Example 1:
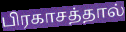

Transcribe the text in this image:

பிரகாசத்தால்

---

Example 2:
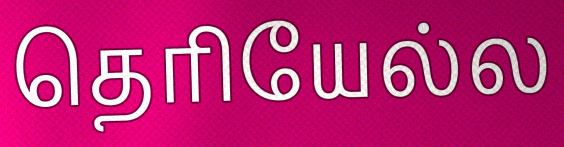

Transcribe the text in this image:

தெரியேல்ல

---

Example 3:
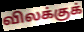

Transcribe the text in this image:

விலக்குக்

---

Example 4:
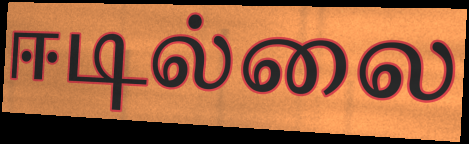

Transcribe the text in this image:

ஈடில்லை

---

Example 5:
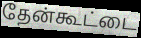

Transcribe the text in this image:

தேன்கூட்டை